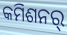
କମିଶନର୍